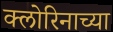
क्लोरिनाच्या